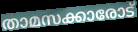
താമസക്കാരോട്